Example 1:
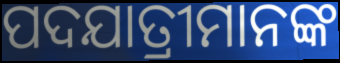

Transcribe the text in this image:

ପଦଯାତ୍ରୀମାନଙ୍କ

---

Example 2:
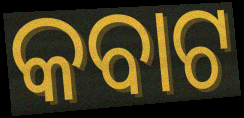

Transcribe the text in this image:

କବାଟ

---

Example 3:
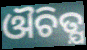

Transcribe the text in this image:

ଔଚିତ୍ଯ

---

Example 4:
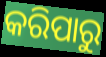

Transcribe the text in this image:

କରିପାରୁ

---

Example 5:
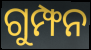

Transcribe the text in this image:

ଗୁମ୍ଫନ